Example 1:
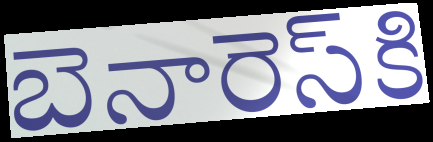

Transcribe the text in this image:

బెనారెస్‌కి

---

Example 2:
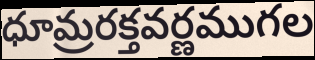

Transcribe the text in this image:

ధూమ్రరక్తవర్ణముగల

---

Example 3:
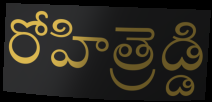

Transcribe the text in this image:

రోహిత్రెడ్డి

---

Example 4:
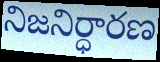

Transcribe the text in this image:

నిజనిర్ధారణ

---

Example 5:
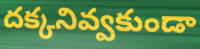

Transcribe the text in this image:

దక్కనివ్వకుండా